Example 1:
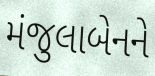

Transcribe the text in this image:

મંજુલાબેનને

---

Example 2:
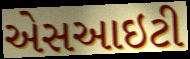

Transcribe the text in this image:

એસઆઇટી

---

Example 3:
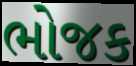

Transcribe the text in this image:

ભોજક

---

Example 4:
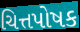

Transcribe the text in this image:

ચિત્તપોષક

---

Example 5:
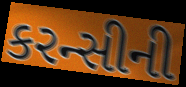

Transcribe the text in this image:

કરન્સીની